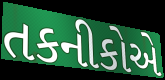
તકનીકોએ